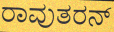
ರಾವುತರನ್